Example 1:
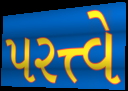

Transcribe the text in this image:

પરત્ત્વે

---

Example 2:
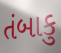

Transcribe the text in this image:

તંબાકુ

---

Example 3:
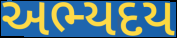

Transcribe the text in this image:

અભ્યદય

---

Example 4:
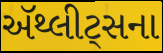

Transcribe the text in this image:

ઍથ્લીટ્સના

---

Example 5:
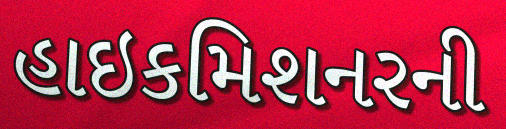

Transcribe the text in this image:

હાઇકમિશનરની